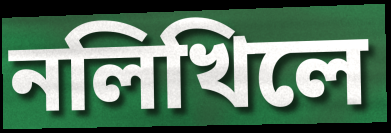
নলিখিলে